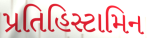
પ્રતિહિસ્ટામિન